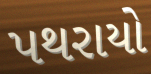
પથરાયો